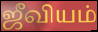
ஜீவியம்